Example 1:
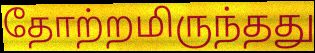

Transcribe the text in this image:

தோற்றமிருந்தது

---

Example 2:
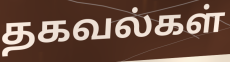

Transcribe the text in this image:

தகவல்கள்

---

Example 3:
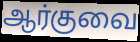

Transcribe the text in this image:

ஆர்குவை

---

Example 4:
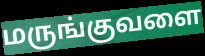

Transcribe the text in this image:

மருங்குவளை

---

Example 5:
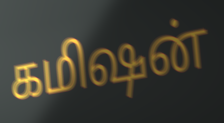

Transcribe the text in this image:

கமிஷன்